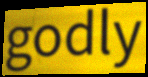
godly